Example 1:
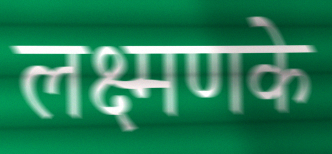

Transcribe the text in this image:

लक्ष्मणके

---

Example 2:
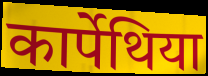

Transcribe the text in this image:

कार्पेथिया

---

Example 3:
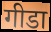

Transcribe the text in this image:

गीडा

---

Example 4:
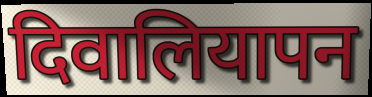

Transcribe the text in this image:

दिवालियापन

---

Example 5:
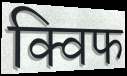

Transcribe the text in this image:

क्विफ